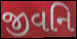
જીવનિ